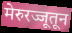
मेरुरज्जूतून